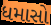
ધમાસો